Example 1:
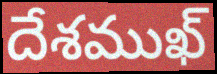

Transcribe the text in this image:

దేశముఖ్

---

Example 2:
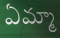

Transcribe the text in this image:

ఏమ్మా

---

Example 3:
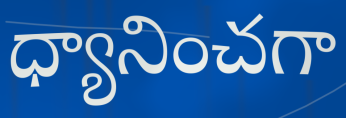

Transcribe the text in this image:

ధ్యానించగా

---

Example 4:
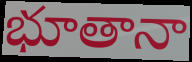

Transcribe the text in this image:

భూతానా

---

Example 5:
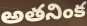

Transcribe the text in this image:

అతనింక